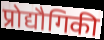
प्रोद्यौगिकी